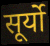
सूर्यो